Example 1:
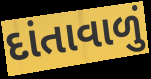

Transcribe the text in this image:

દાંતાવાળું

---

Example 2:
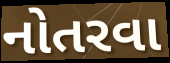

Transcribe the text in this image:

નોતરવા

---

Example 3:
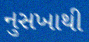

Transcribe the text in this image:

નુસખાથી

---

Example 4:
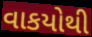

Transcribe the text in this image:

વાકયોથી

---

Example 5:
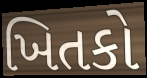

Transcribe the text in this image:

ખિતકો